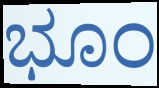
ಭೂಂ